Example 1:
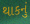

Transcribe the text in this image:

થાકનું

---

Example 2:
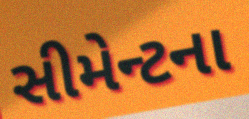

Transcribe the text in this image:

સીમેન્ટના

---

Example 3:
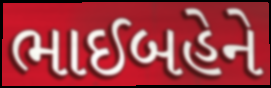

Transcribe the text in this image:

ભાઈબહેને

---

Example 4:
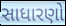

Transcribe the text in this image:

સાધારણો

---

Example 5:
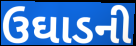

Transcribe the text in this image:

ઉઘાડની